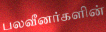
பலவீனர்களின்